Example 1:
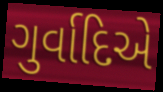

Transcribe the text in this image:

ગુર્વાદિએ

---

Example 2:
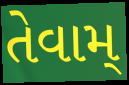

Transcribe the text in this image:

તેવામ્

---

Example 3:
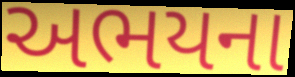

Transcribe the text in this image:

અભયના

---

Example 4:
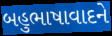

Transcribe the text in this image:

બહુભાષાવાદને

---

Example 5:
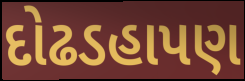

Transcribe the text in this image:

દોઢડહાપણ